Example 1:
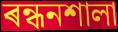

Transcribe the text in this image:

ৰন্ধনশালা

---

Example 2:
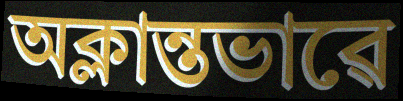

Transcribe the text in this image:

অক্লান্তভাৱে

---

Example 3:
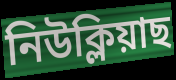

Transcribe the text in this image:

নিউক্লিয়াছ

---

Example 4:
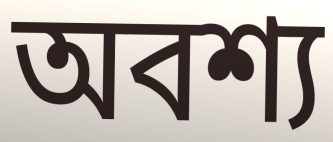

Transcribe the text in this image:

অবশ্য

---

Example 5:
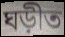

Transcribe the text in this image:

ঘড়ীত